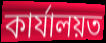
কাৰ্যালয়ত